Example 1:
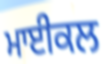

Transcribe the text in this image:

ਮਾਈਕਲ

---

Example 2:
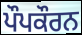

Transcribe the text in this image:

ਪੌਪਕੌਰਨ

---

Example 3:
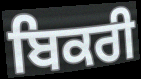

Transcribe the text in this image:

ਬਿਕਰੀ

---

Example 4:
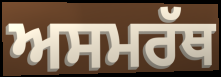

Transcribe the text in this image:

ਅਸਮਰੱਥ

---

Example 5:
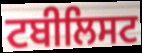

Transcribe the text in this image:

ਟਬੀਲਿਸਟ